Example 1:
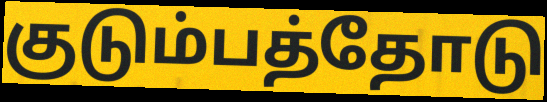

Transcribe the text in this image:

குடும்பத்தோடு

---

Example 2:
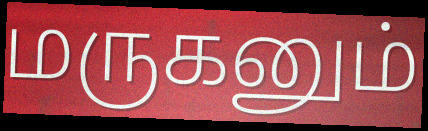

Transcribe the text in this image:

மருகனும்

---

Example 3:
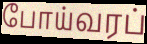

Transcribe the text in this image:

போய்வரப்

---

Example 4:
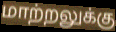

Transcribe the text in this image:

மாற்றலுக்கு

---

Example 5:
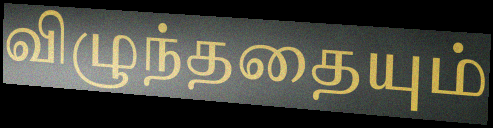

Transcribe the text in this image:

விழுந்ததையும்